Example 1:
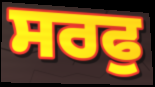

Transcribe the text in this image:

ਸਰਫੁ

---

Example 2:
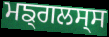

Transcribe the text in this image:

ਮਙ੍ਗਲਸ੍ਸ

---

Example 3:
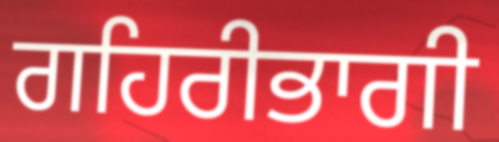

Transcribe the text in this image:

ਗਹਿਰੀਭਾਗੀ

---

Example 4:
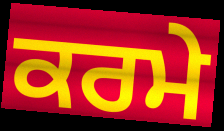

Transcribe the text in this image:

ਕਰਮੇ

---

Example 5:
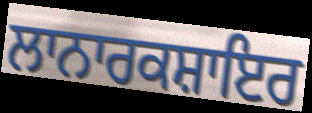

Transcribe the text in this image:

ਲਾਨਾਰਕਸ਼ਾਇਰ